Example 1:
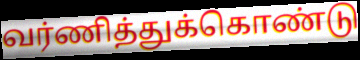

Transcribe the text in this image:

வர்ணித்துக்கொண்டு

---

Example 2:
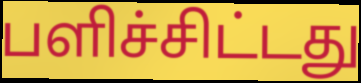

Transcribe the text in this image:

பளிச்சிட்டது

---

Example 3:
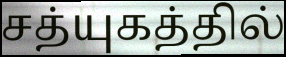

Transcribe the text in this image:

சத்யுகத்தில்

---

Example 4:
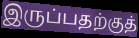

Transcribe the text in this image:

இருப்பதற்குத்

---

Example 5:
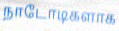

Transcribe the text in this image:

நாடோடிகளாக